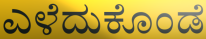
ಎಳೆದುಕೊಂಡೆ